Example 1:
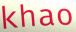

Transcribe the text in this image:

khao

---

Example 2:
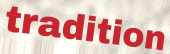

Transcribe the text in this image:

tradition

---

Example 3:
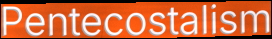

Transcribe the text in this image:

Pentecostalism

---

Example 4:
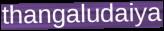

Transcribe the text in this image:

thangaludaiya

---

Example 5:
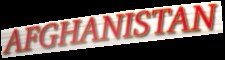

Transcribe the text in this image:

AFGHANISTAN